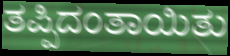
ತಪ್ಪಿದಂತಾಯಿತು